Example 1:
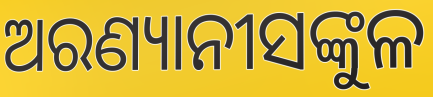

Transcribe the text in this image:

ଅରଣ୍ୟାନୀସଙ୍କୁଳ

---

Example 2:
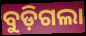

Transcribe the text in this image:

ବୁଡ଼ିଗଲା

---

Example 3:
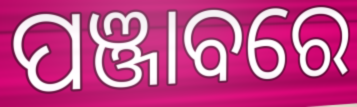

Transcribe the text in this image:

ପଞ୍ଜାବରେ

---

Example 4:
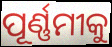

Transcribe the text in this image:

ପୂର୍ଣ୍ଣମୀକୁ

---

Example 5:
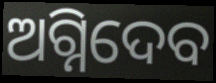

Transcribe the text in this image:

ଅଗ୍ନିଦେବ